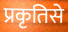
प्रकृतिसे